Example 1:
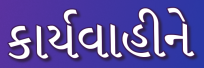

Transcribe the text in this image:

કાર્યવાહીને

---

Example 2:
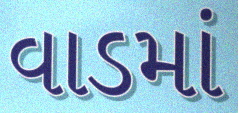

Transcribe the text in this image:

વાડમાં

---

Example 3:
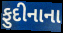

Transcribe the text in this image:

ફુદીનાના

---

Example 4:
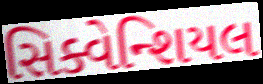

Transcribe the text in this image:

સિક્વેન્શિયલ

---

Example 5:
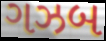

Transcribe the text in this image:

ગઝબ